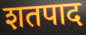
शतपाद